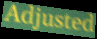
Adjusted